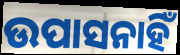
ଉପାସନାହିଁ